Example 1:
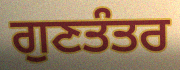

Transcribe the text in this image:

ਗੁਣਤੰਤਰ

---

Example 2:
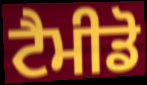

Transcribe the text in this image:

ਟੈਮੀਡੋ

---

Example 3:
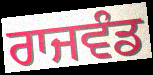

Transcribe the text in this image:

ਰਾਜਵੰਡ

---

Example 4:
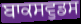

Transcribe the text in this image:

ਬਾਕਸਵੁਡਸ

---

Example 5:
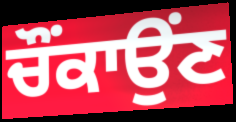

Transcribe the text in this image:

ਚੌਂਕਾਉਂਣ